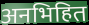
अनभिहित